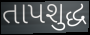
તાપશુદ્ધ